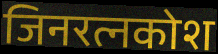
जिनरत्नकोश